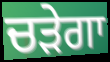
ਚੜੇਗਾ